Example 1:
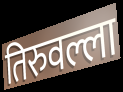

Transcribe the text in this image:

तिरुवल्ला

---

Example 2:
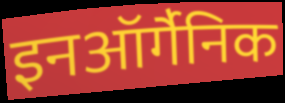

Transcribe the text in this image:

इनऑर्गैनिक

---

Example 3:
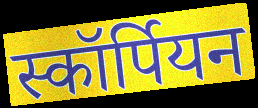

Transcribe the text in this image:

स्कॉर्पियन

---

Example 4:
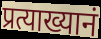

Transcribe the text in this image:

प्रत्याख्यानं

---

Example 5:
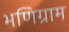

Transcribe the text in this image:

भणिग्राम